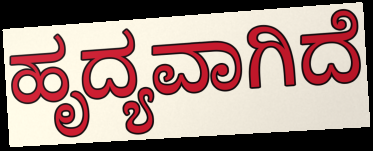
ಹೃದ್ಯವಾಗಿದೆ